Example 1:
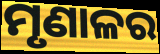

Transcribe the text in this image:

ମୃଣାଳର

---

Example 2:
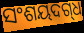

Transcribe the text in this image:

ସଂଶୟଦଗ୍‌ଧ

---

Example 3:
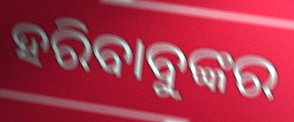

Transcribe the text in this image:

ହରିବାବୁଙ୍କର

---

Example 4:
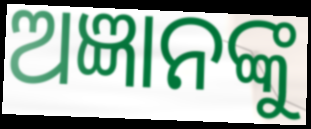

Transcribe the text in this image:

ଅଜ୍ଞାନଙ୍କୁ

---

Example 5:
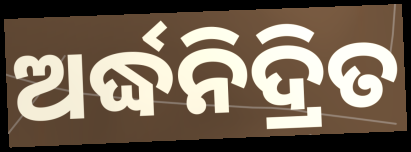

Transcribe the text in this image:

ଅର୍ଦ୍ଧନିଦ୍ରିତ